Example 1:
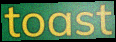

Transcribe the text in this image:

toast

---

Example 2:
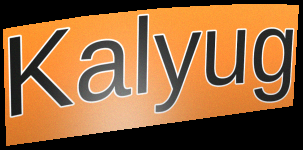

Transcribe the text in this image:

Kalyug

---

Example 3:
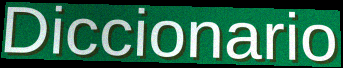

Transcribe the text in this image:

Diccionario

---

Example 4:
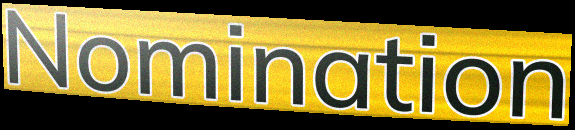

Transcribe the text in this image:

Nomination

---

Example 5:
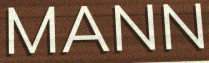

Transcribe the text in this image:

MANN